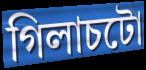
গিলাচটো